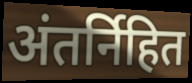
अंतर्निहित